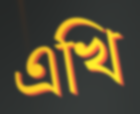
এখি